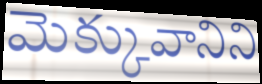
మెక్కువానిని